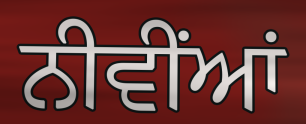
ਨੀਵੀਂਆਂ